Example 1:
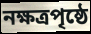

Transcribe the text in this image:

নক্ষত্রপৃষ্ঠে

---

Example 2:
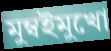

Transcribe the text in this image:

মুম্বইমুখো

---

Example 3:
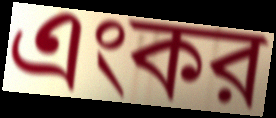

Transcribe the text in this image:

এংকর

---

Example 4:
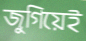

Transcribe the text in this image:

জুগিয়েই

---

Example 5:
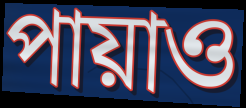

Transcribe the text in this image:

পায়াও